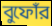
বুফোঁর